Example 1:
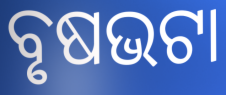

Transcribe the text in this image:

ବୃଷଭଟା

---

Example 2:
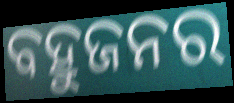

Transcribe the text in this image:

ବହୁଜନର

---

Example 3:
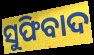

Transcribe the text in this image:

ସୁଫିବାଦ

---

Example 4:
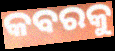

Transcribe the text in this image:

କବରକୁ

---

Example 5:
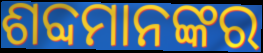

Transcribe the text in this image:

ଶବ୍ଦମାନଙ୍କର